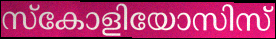
സ്കോളിയോസിസ്